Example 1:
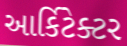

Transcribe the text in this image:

આર્કિટેક્ટર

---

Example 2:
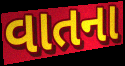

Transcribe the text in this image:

વાતના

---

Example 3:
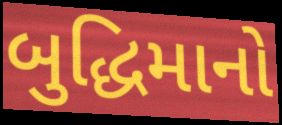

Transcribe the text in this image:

બુદ્ધિમાનો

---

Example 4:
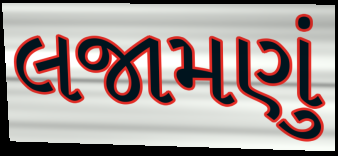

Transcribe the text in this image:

લજામણું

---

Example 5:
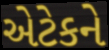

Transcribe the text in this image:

એટેકને